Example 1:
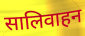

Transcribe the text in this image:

सालिवाहन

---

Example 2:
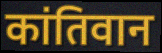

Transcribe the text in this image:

कांतिवान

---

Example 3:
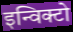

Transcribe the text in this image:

इन्विक्टो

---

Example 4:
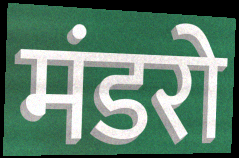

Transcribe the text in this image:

मंडरो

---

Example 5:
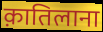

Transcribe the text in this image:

क़ातिलाना